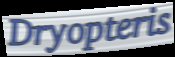
Dryopteris